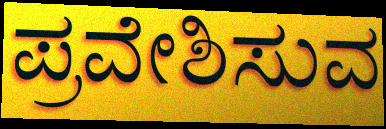
ಪ್ರವೇಶಿಸುವ